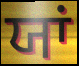
ਯਾਂ